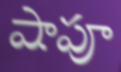
షాపూ